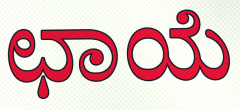
ಛಾಯೆ